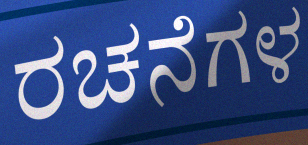
ರಚನೆಗಳ